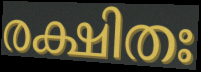
രക്ഷിതഃ